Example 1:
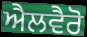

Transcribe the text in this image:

ਐਲਵੈਰੋ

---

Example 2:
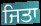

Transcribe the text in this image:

ਜਿਤਾ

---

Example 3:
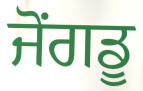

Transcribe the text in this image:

ਜੋਂਗਡੂ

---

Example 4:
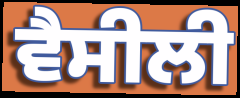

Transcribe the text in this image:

ਵੈਸੀਲੀ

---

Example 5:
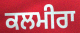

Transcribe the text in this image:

ਕਲਮੀਰਾ